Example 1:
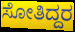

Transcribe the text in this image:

ಸೋತಿದ್ದರ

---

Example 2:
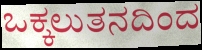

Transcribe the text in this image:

ಒಕ್ಕಲುತನದಿಂದ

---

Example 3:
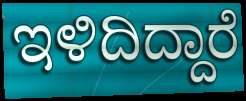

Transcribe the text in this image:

ಇಳಿದಿದ್ದಾರೆ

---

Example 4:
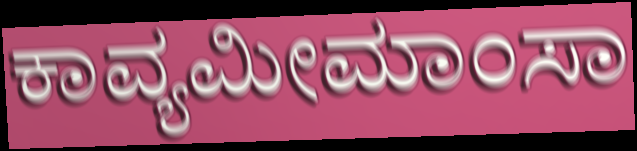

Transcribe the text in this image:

ಕಾವ್ಯಮೀಮಾಂಸಾ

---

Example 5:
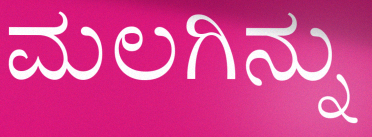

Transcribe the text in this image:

ಮಲಗಿನ್ನು